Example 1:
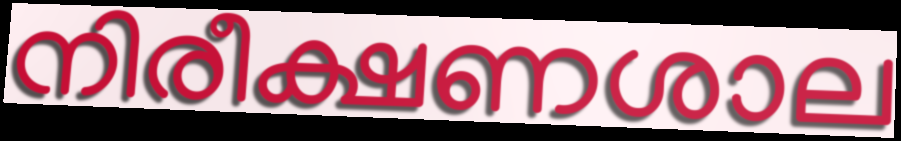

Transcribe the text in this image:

നിരീക്ഷണശാല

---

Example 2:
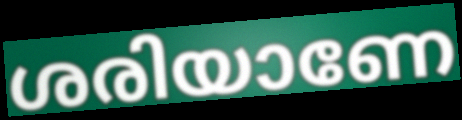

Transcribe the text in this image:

ശരിയാണേ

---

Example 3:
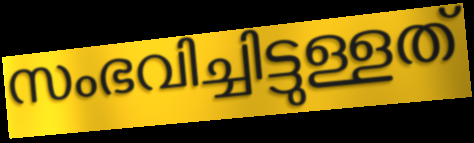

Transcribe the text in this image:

സംഭവിച്ചിട്ടുള്ളത്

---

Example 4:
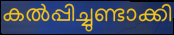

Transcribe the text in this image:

കൽപ്പിച്ചുണ്ടാക്കി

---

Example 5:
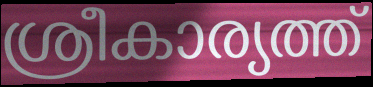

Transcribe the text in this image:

ശ്രീകാര്യത്ത്